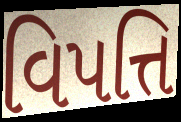
વિપત્તિ